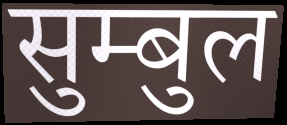
सुम्बुल